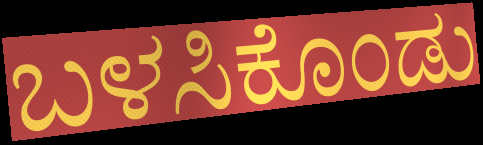
ಬಳಸಿಕೊಂಡು